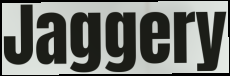
Jaggery